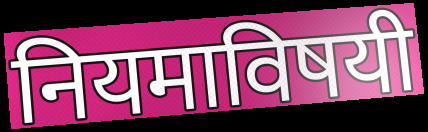
नियमाविषयी